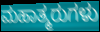
ಮಹಾತ್ಮರುಗಳು